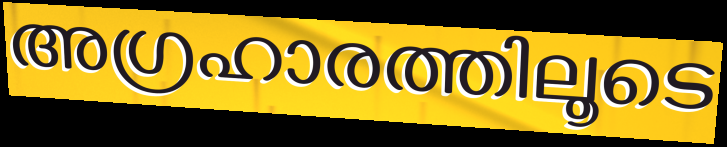
അഗ്രഹാരത്തിലൂടെ